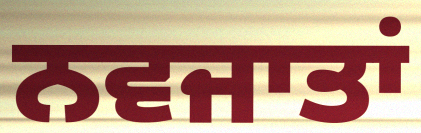
ਨਵਜਾਤਾਂ